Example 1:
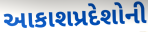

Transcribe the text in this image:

આકાશપ્રદેશોની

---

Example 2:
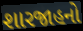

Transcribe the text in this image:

શારજાહનો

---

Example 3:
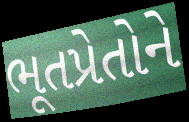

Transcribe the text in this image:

ભૂતપ્રેતોને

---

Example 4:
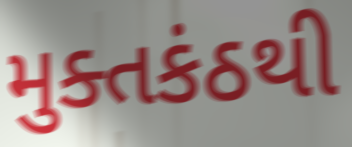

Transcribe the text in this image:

મુક્તકંઠથી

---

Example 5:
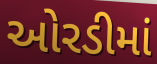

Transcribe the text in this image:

ઓરડીમાં